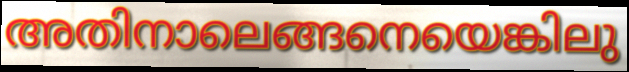
അതിനാലെങ്ങനെയെങ്കിലു